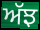
ਅੱਝ